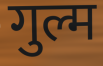
गुल्म